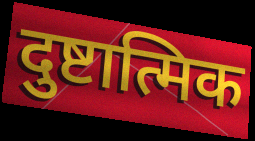
दुष्टात्मिक